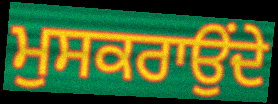
ਮੁਸਕਰਾਉਂਦੇ